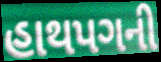
હાથપગની